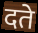
दते